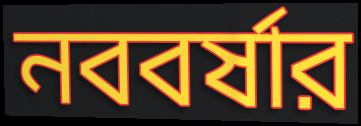
নববর্ষার